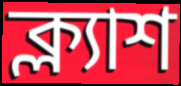
ক্ল্যাশ